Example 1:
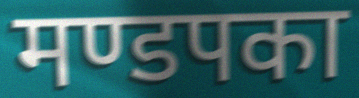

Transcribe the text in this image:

मण्डपका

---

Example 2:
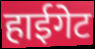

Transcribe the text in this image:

हाईगेट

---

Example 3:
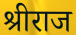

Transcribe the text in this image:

श्रीराज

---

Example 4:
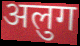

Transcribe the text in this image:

अलुग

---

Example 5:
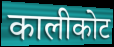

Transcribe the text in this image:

कालीकोट